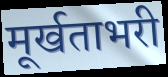
मूर्खताभरी